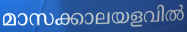
മാസക്കാലയളവിൽ